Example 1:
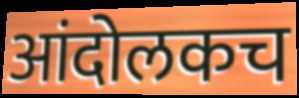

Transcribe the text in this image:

आंदोलकच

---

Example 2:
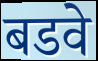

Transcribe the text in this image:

बडवे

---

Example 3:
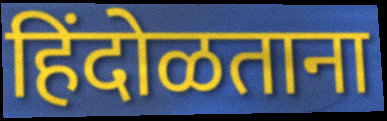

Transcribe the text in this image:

हिंदोळताना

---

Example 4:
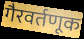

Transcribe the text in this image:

गैरवर्तणूक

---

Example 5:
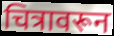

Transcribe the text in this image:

चित्रावरून